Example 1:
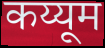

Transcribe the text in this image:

कय्यूम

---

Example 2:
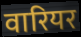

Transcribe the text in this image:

वारियर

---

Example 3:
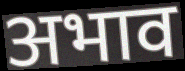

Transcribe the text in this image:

अभाव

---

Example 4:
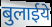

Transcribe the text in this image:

बुलाईये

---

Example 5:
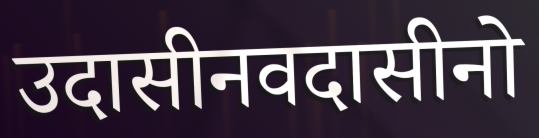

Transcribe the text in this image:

उदासीनवदासीनो